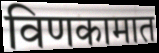
विणकामात